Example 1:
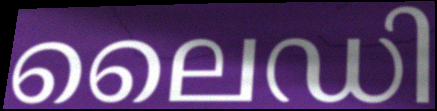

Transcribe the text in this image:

ലൈഡി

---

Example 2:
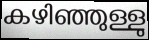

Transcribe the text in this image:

കഴിഞ്ഞുള്ളു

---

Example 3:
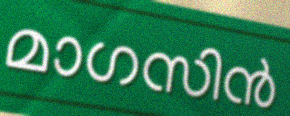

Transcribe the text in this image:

മാഗസിൻ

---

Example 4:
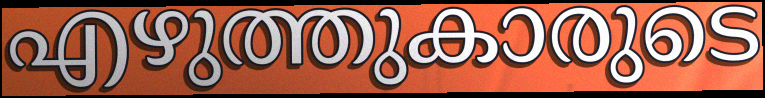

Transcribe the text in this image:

എഴുത്തുകാരുടെ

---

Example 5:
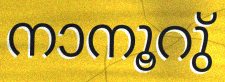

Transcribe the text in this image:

നാനൂറു്